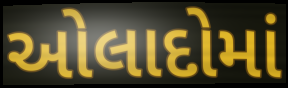
ઓલાદોમાં